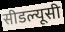
सीडल्यूसी